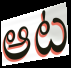
ఆట